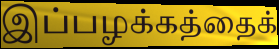
இப்பழக்கத்தைக்